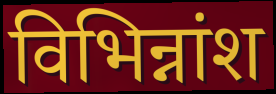
विभिन्नांश